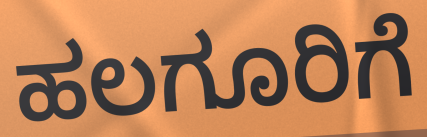
ಹಲಗೂರಿಗೆ